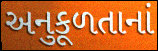
અનુકૂળતાનાં